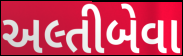
અલ્તીબેવા